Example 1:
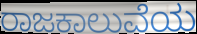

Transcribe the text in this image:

ರಾಜಕಾಲುವೆಯ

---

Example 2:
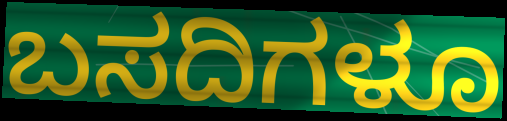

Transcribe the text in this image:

ಬಸದಿಗಳೂ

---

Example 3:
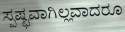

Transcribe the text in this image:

ಸ್ಪಷ್ಟವಾಗಿಲ್ಲವಾದರೂ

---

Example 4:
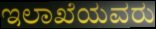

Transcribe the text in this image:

ಇಲಾಖೆಯವರು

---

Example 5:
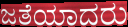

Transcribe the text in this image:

ಜತೆಯಾದರು